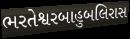
ભરતેશ્વરબાહુબલિરાસ